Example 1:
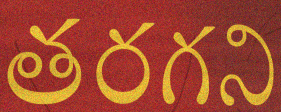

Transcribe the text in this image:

తరగని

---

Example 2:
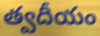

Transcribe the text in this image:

త్వదీయం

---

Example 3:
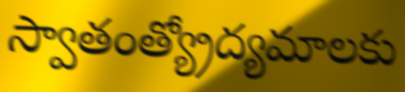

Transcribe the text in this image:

స్వాతంత్య్రోద్యమాలకు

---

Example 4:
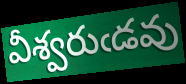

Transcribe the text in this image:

వీశ్వరుఁడవు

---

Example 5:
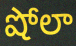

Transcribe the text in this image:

షోలా